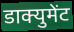
डाक्युमेंट